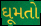
ઘૂમતો